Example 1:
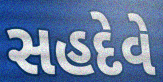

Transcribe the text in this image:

સહદેવે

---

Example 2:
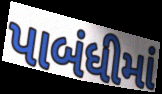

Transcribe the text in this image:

પાબંધીમાં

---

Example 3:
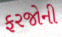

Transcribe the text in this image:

ફરજોની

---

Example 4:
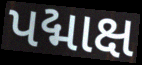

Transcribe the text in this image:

પદ્માક્ષ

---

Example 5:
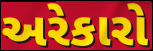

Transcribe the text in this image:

અરેકારો